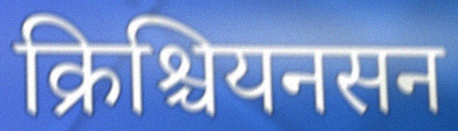
क्रिश्चियनसन